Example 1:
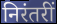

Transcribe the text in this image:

निरंतरीं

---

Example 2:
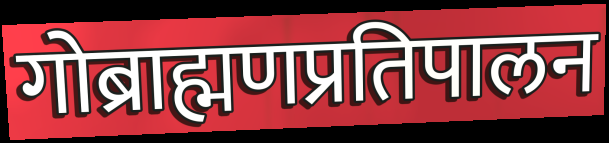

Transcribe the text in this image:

गोब्राह्मणप्रतिपालन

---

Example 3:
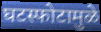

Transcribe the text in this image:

घटस्फोटामुळे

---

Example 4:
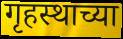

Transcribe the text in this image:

गृहस्थाच्या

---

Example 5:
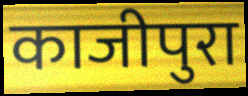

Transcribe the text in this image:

काजीपुरा